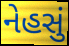
નેહસું